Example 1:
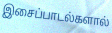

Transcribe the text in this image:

இசைப்பாடல்களால்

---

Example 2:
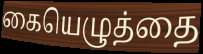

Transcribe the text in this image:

கையெழுத்தை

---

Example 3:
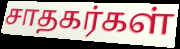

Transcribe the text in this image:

சாதகர்கள்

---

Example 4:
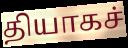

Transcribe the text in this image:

தியாகச்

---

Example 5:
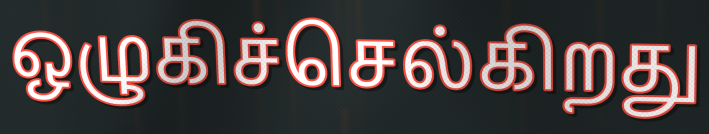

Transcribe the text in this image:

ஒழுகிச்செல்கிறது